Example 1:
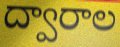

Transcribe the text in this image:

ద్వారాల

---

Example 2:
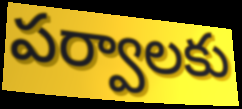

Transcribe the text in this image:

పర్వాలకు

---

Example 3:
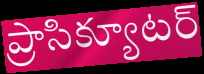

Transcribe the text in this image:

ప్రాసిక్యూటర్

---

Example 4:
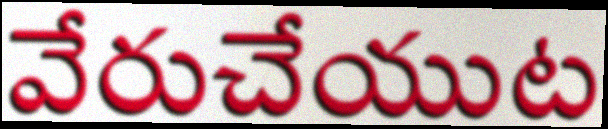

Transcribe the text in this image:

వేరుచేయుట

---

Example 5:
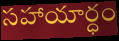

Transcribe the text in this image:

సహాయార్ధం